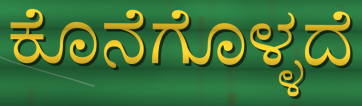
ಕೊನೆಗೊಳ್ಳದೆ